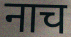
नाच